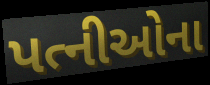
પત્નીઓના